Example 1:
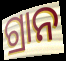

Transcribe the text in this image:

ଗ୍ରାନ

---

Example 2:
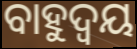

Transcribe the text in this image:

ବାହୁଦ୍ୱୟ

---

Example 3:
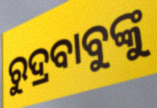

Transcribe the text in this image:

ରୁଦ୍ରବାବୁଙ୍କୁ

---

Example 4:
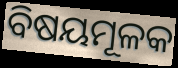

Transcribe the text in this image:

ବିଷୟମୂଳକ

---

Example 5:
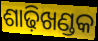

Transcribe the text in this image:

ଶାଢ଼ିଖଣ୍ଡକ